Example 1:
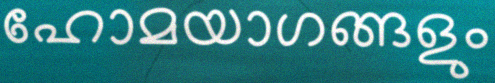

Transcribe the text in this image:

ഹോമയാഗങ്ങളും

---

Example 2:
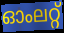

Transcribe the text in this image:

ഓംലറ്റ്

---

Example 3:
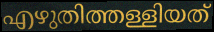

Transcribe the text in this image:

എഴുതിത്തള്ളിയത്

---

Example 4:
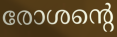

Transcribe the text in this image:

രോശന്റെ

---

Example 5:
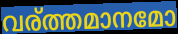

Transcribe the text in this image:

വര്ത്തമാനമോ